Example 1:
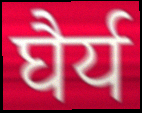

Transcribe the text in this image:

घैर्य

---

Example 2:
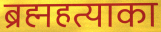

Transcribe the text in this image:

ब्रह्महत्याका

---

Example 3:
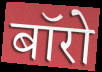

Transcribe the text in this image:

बॉरो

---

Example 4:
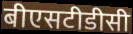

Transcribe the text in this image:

बीएसटीडीसी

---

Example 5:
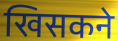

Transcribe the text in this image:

खिसकने